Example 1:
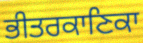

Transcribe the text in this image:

ਭੀਤਰਕਾਣਿਕਾ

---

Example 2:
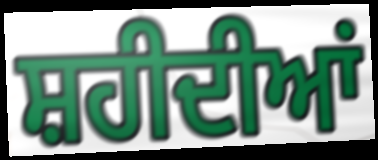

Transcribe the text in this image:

ਸ਼ਹੀਦੀਆਂ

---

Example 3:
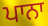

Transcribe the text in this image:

ਪਾਨਾ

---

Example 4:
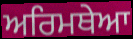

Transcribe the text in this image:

ਅਰਿਮਥੇਆ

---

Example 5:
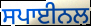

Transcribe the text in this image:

ਸਪਾਈਨਲ